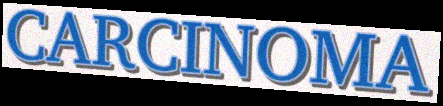
CARCINOMA